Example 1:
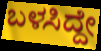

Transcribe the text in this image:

ಬಳಸಿದ್ದೇ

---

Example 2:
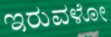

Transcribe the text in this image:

ಇರುವಳೋ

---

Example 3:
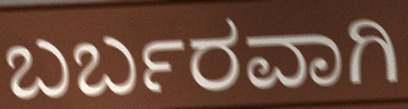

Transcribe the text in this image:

ಬರ್ಬರವಾಗಿ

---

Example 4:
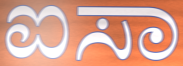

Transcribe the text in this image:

ಐಸಾ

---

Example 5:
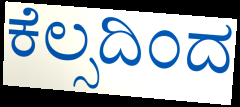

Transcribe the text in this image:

ಕೆಲ್ಸದಿಂದ